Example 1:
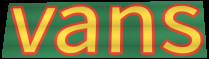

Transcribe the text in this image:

vans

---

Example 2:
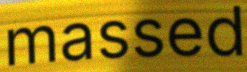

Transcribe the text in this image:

massed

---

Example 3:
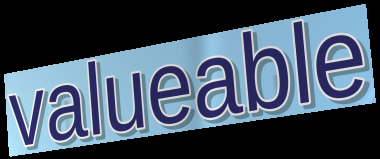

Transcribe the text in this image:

valueable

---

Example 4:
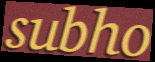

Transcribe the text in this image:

subho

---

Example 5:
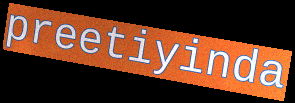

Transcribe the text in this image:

preetiyinda